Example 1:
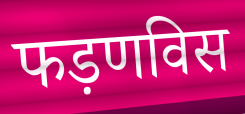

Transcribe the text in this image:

फड़णविस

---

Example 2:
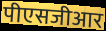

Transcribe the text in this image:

पीएसजीआर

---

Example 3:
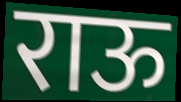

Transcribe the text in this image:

राऊ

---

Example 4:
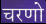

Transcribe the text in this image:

चरणो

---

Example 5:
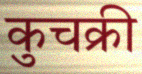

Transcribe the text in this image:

कुचक्री